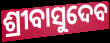
ଶ୍ରୀବାସୁଦେବ